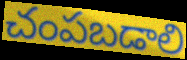
చంపబడాలి